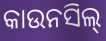
କାଉନସିଲ୍